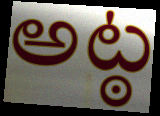
అట్ఠ